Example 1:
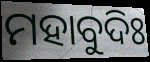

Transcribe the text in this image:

ମହାବୁଦିଃ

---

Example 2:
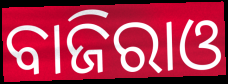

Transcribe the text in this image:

ବାଜିରାଓ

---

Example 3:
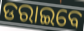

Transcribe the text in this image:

ଡରାଇବେ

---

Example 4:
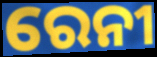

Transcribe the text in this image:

ରେନୀ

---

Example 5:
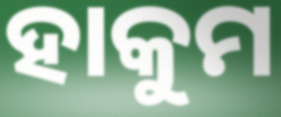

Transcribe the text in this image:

ହାକୁମ